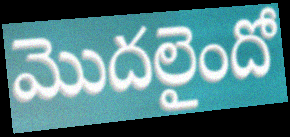
మొదలైందో